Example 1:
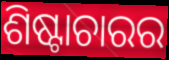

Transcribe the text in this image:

ଶିଷ୍ଟାଚାରର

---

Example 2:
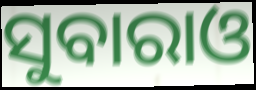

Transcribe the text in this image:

ସୁବାରାଓ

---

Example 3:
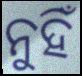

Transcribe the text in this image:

ନୁହିଁ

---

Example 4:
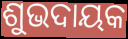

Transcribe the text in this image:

ଶୁଭଦାୟକ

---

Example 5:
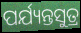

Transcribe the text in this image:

ପର୍ଯ୍ୟନ୍ତସୁତ୍ର